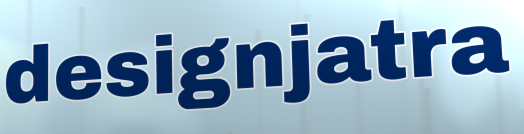
designjatra